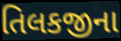
તિલકજીના